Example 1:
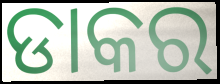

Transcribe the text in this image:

ଡାକର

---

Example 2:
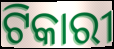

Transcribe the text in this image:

ଟିକାରୀ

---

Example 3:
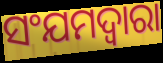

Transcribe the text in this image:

ସଂଯମଦ୍ୱାରା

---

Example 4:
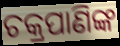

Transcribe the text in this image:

ଚକ୍ରପାଣିଙ୍କ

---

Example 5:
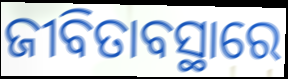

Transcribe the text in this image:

ଜୀବିତାବସ୍ଥାରେ